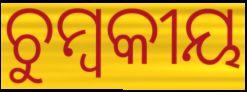
ଚୁମ୍ବକୀୟ